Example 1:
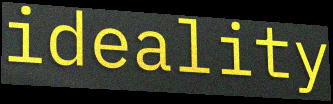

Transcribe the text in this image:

ideality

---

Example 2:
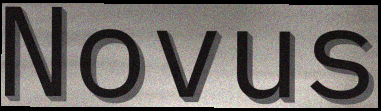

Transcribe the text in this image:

Novus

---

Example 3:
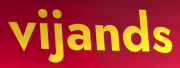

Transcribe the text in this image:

vijands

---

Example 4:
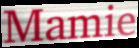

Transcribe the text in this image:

Mamie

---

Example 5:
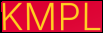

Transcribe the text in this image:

KMPL